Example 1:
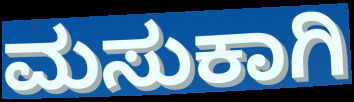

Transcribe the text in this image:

ಮಸುಕಾಗಿ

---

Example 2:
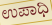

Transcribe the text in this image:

ಉಪಾಧಿ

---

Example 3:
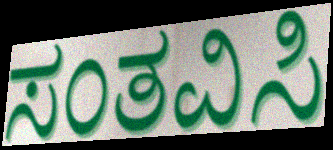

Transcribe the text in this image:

ಸಂತವಿಸಿ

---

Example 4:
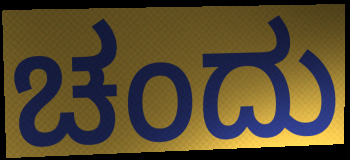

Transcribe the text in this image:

ಚಂದು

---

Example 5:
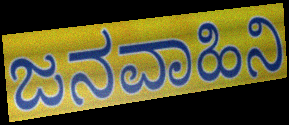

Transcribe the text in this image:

ಜನವಾಹಿನಿ